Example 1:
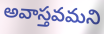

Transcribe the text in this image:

అవాస్తవమని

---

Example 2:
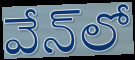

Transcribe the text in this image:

వేన్‌లో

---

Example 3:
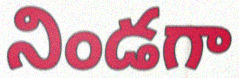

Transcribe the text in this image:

నిండగా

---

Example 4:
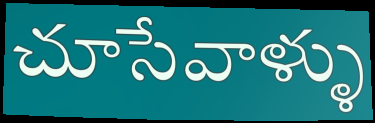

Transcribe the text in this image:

చూసేవాళ్ళు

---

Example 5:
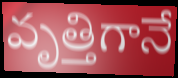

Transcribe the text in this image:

వృత్తిగానే